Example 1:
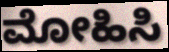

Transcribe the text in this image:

ಮೋಹಿಸಿ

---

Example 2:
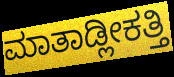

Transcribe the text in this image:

ಮಾತಾಡ್ಲೀಕತ್ತಿ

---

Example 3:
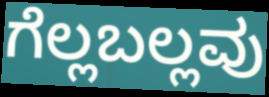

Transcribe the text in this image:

ಗೆಲ್ಲಬಲ್ಲವು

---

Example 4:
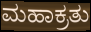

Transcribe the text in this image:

ಮಹಾಕ್ರತು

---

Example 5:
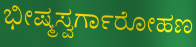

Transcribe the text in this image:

ಭೀಷ್ಮಸ್ವರ್ಗಾರೋಹಣ